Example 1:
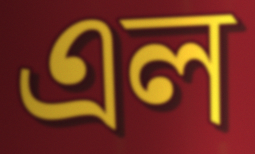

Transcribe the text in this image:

এল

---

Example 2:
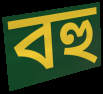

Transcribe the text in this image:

বহু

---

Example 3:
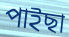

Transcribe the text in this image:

পাইছা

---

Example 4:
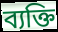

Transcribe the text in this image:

ব্যক্তি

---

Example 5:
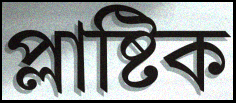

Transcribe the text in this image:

প্লাষ্টিক